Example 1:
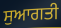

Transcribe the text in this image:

ਸੁਆਗਤੀ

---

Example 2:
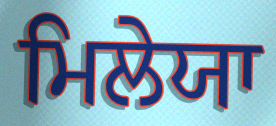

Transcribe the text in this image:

ਮਿਲੇਯਾ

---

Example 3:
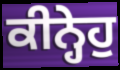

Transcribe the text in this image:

ਕੀਨ੍ਹੇਹੁ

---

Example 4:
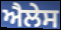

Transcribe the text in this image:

ਐਲੇਸ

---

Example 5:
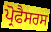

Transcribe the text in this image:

ਪ੍ਰੋਫੈਸਰਸ